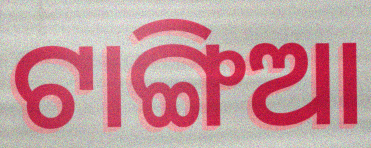
ଟାଙ୍ଗିଆ